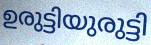
ഉരുട്ടിയുരുട്ടി